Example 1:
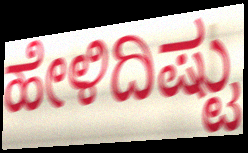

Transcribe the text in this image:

ಹೇಳಿದಿಷ್ಟು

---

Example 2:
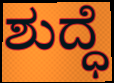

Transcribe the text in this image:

ಶುದ್ಧೆ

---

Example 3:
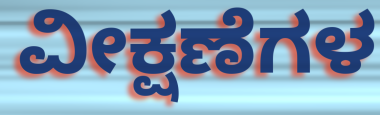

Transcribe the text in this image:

ವೀಕ್ಷಣೆಗಳ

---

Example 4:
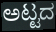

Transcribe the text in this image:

ಅಟ್ಟದ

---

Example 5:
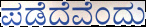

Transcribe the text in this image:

ಪಡೆದೆವೆಂದು